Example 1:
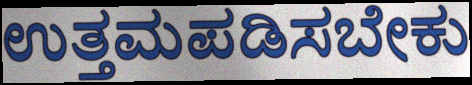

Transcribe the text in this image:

ಉತ್ತಮಪಡಿಸಬೇಕು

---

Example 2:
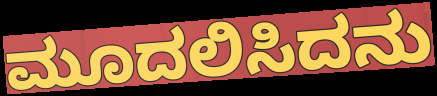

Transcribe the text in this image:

ಮೂದಲಿಸಿದನು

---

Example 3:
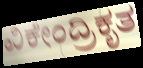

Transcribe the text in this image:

ವಿಕೇಂದ್ರಿಕೃತ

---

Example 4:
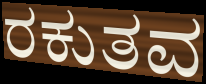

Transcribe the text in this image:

ರಕುತವ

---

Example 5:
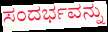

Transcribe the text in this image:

ಸಂದರ್ಭವನ್ನು